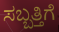
ಸಬ್ಬತ್ತಿಗೆ